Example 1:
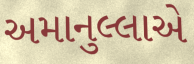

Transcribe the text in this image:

અમાનુલ્લાએ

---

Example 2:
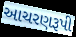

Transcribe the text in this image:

આચરણરૂપી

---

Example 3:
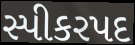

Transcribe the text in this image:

સ્પીકરપદ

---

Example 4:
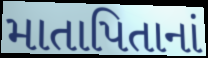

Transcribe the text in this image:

માતાપિતાનાં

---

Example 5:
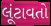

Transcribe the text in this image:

લૂંટાવતો